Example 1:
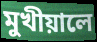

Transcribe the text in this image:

মুখীয়ালে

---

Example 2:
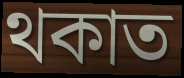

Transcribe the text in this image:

থকাত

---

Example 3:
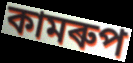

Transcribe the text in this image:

কামৰুপ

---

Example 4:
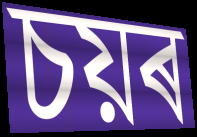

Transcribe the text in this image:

চয়ৰ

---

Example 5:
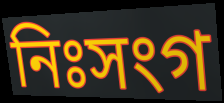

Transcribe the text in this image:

নিঃসংগ